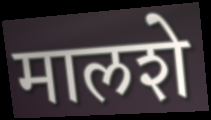
मालशे